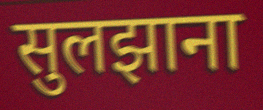
सुलझाना